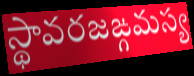
స్థావరజఙ్గమస్య